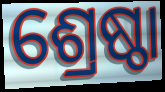
ଶ୍ରେଷ୍ଠା